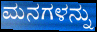
ಮನಗಳನ್ನು